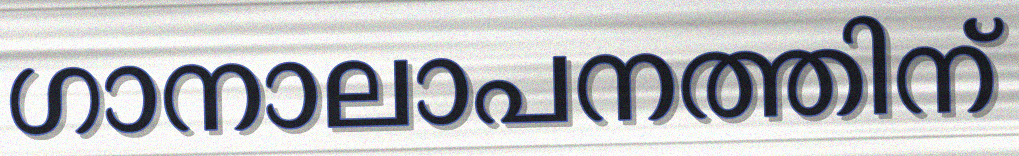
ഗാനാലാപനത്തിന്